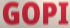
GOPI